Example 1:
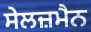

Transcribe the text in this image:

ਸੇਲਜ਼ਮੈਨ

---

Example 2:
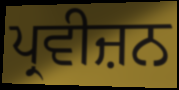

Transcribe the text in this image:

ਪ੍ਰਵੀਜ਼ਨ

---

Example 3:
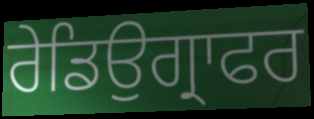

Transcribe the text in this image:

ਰੇਡਿਉਗ੍ਰਾਫਰ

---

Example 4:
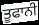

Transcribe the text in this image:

ਤੂਫਾਨੀ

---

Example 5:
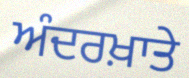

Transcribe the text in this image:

ਅੰਦਰਖ਼ਾਤੇ